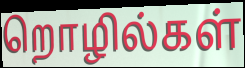
றொழில்கள்